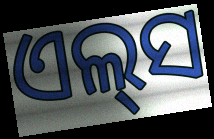
ଏଲ୍‌ସ